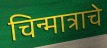
चिन्मात्राचे